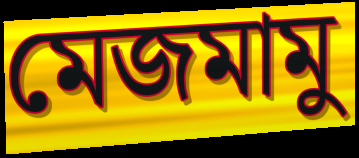
মেজমামু